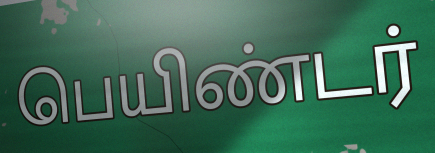
பெயிண்டர்